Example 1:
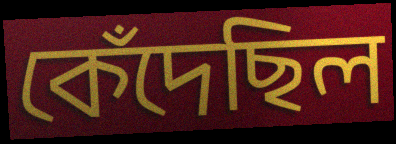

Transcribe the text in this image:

কেঁদেছিল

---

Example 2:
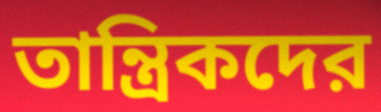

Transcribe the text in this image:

তান্ত্রিকদের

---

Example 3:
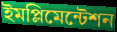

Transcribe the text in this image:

ইমপ্লিমেন্টেশন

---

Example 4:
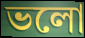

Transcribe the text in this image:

ভলো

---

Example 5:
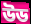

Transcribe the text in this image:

উড